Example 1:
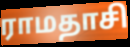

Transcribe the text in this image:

ராமதாசி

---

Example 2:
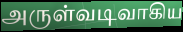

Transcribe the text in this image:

அருள்வடிவாகிய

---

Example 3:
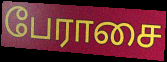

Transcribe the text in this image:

பேராசை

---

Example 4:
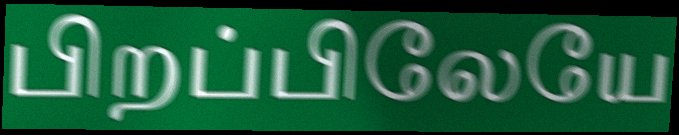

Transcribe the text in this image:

பிறப்பிலேயே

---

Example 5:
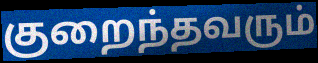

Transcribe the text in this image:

குறைந்தவரும்